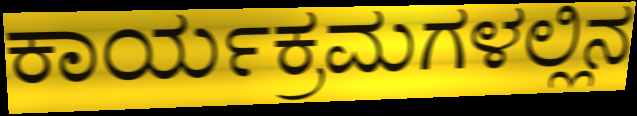
ಕಾರ್ಯಕ್ರಮಗಳಲ್ಲಿನ